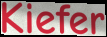
Kiefer